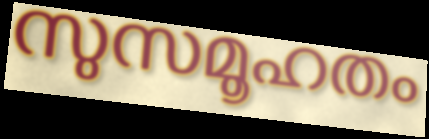
സുസമൂഹതം